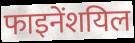
फाइनेंशयिल